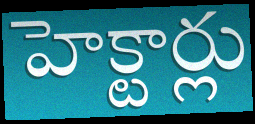
హెక్టార్లు